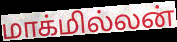
மாக்மில்லன்